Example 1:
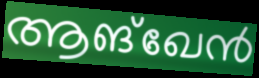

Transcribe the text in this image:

ആങ്ഖേൻ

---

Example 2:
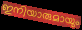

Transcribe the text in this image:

ഇനിയാരുമായും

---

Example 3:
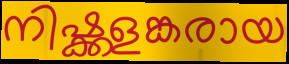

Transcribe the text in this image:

നിഷ്ക്കളങ്കരായ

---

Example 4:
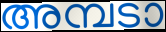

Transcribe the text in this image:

അമ്പടാ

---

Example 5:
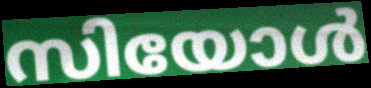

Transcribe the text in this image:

സിയോൾ